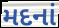
મદનાં